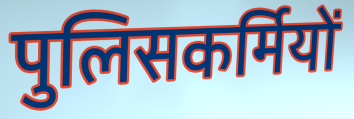
पुलिसकर्मियों